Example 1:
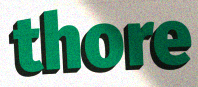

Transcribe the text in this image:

thore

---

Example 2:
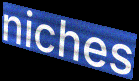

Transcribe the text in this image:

niches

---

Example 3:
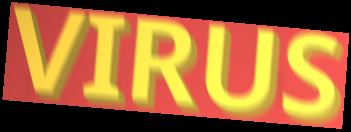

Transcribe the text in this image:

VIRUS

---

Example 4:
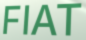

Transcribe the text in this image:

FIAT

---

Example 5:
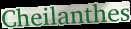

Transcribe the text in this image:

Cheilanthes